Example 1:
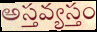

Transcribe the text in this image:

అస్తవ్యస్తం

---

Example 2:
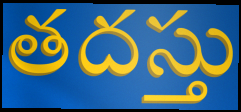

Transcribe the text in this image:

తదస్తు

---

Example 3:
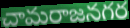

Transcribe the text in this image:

చామరాజనగర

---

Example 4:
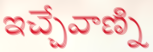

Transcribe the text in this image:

ఇచ్చేవాణ్ని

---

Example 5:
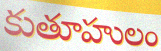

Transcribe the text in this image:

కుతూహులం